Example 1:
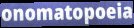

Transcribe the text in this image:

onomatopoeia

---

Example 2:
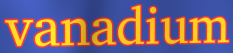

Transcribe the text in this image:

vanadium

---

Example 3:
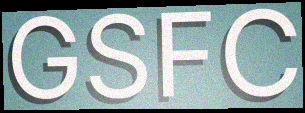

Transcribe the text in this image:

GSFC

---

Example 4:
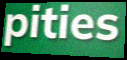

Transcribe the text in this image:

pities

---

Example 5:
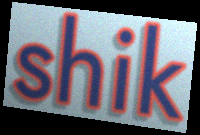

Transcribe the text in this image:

shik